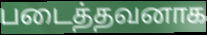
படைத்தவனாக